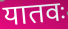
यातवः